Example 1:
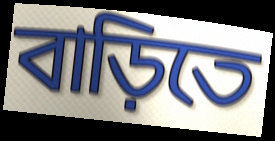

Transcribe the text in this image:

বাড়িতে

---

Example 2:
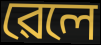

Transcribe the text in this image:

ৱেলে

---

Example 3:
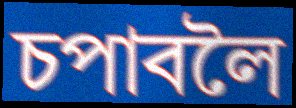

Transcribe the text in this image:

চপাবলৈ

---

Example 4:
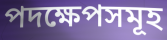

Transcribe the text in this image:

পদক্ষেপসমূহ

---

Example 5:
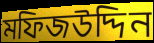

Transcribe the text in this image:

মফিজউদ্দিন